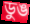
ডুঙ